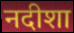
नदीशा